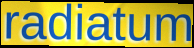
radiatum